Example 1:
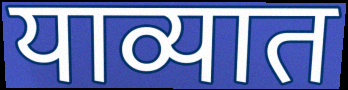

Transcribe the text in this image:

याव्यात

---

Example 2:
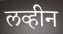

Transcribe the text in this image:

लव्हीन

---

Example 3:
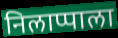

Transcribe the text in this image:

निलाप्पाला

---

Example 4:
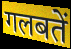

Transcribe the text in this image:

गलबतें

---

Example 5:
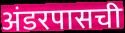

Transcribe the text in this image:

अंडरपासची